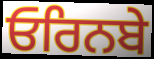
ਓਰਿਨਬੇ